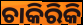
ଚାକିରିକି